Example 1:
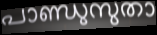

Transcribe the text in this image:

പാണ്ഡുസുതാ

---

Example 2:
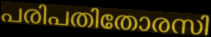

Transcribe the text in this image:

പരിപതിതോരസി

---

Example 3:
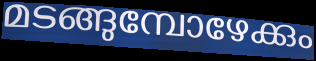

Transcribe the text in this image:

മടങ്ങുമ്പോഴേക്കും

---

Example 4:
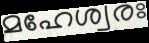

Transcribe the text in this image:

മഹേശ്വരഃ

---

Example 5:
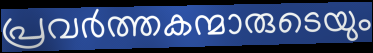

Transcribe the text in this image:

പ്രവർത്തകന്മാരുടെയും